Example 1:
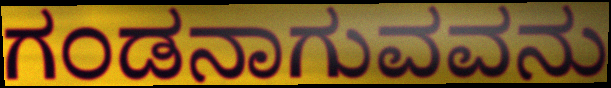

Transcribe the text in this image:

ಗಂಡನಾಗುವವನು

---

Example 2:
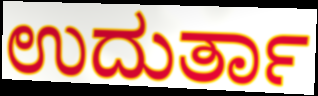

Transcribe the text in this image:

ಉದುರ್ತಾ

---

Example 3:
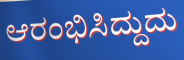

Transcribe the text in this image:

ಆರಂಭಿಸಿದ್ದುದು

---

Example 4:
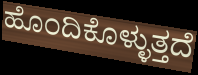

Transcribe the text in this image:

ಹೊಂದಿಕೊಳ್ಳುತ್ತದೆ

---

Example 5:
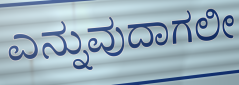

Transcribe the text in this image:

ಎನ್ನುವುದಾಗಲೀ